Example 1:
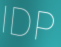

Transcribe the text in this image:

IDP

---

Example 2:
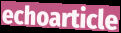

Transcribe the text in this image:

echoarticle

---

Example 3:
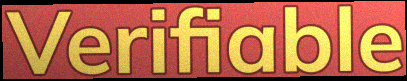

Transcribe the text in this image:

Verifiable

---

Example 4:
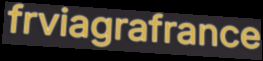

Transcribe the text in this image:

frviagrafrance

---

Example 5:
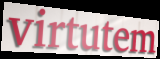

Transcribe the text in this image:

virtutem